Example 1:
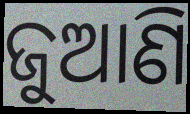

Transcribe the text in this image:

ଜୁଆଣି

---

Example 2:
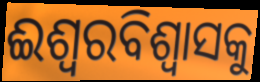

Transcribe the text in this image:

ଈଶ୍ୱରବିଶ୍ୱାସକୁ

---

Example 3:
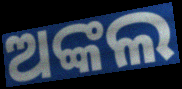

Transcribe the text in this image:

ଅଙ୍କଲ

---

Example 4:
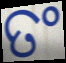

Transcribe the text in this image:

ତଂ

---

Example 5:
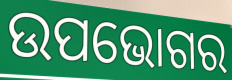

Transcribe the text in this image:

ଉପଭୋଗର